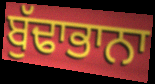
ਬੁੱਢਾਭਾਨਾ